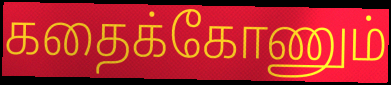
கதைக்கோணும்